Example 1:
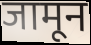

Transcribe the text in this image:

जामून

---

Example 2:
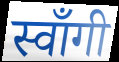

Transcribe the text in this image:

स्वाँगी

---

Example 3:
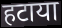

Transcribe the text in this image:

हटाया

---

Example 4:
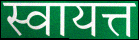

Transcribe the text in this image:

स्वायत्त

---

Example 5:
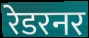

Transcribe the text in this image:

रेडरनर